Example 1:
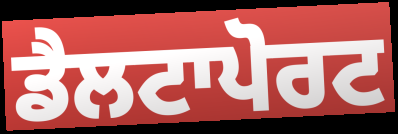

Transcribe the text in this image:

ਡੈਲਟਾਪੋਰਟ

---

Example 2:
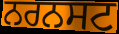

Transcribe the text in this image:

ਨਰਨਸਟ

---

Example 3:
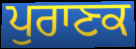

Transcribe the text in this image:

ਪੁਰਾਣਕ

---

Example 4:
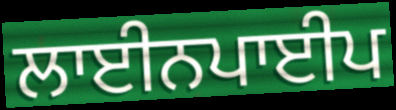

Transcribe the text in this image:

ਲਾਈਨਪਾਈਪ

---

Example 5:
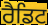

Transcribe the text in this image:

ਰੈਡਿਟ